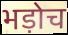
भड़ोच